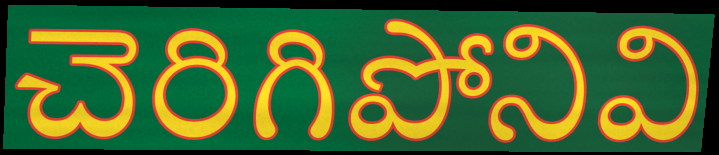
చెరిగిపోనివి